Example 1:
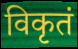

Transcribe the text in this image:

विकृतं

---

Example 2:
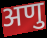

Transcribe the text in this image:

अणु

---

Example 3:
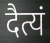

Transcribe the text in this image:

दैत्यं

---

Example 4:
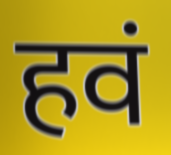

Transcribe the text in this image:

हवं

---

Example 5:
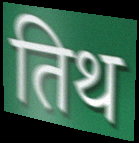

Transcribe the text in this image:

तिथ